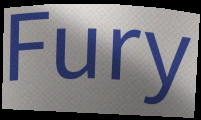
Fury